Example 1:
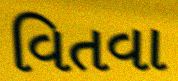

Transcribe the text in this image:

વિતવા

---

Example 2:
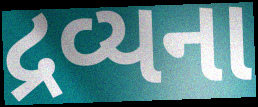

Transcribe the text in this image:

દ્રવ્યના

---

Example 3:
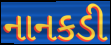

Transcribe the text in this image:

નાનકડી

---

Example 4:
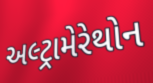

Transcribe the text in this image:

અલ્ટ્રામેરેથોન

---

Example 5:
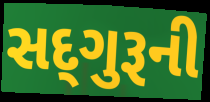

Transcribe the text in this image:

સદ્‌ગુરૂની